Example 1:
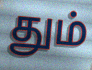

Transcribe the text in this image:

தும்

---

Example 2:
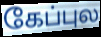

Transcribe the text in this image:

கேப்புல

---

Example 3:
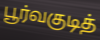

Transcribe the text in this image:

பூர்வகுடித்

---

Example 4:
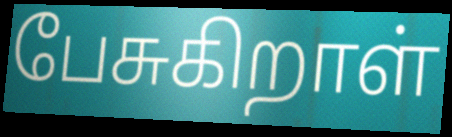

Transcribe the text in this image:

பேசுகிறாள்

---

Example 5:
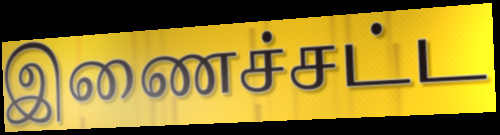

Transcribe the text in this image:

இணைச்சட்ட